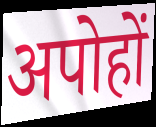
अपोहों